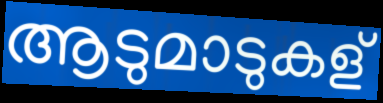
ആടുമാടുകള്